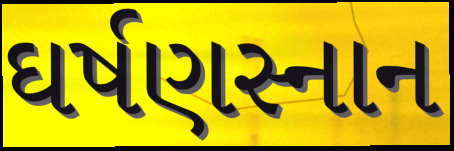
ઘર્ષણસ્નાન